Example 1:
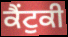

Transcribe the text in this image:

ਕੈਂਟੁਕੀ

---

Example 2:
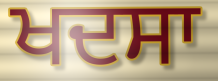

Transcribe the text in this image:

ਖਦਸਾ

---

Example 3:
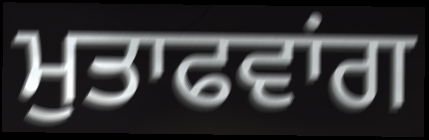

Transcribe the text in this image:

ਮੁਤਾਫਵਾਂਗ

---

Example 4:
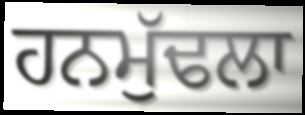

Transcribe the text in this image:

ਹਨਮੁੱਢਲਾ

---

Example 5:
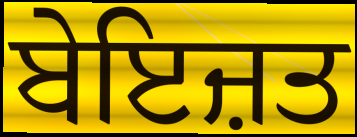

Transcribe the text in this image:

ਬੇਇਜ਼ਤ